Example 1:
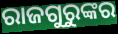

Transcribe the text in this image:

ରାଜଗୁରୁଙ୍କର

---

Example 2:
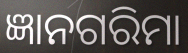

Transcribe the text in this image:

ଜ୍ଞାନଗରିମା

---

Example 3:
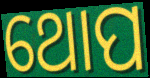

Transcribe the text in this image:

ଥୋପ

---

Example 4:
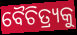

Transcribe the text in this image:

ବୈଚିତ୍ର୍ୟକୁ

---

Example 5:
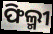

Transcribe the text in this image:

ଫିଲ୍ମୀ